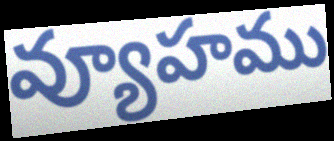
వ్యూహము